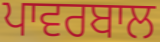
ਪਾਵਰਬਾਲ